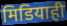
मिडियाही